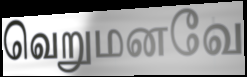
வெறுமனவே